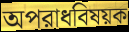
অপরাধবিষয়ক